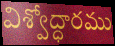
విశ్వోద్ధారము